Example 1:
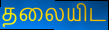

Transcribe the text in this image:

தலையிட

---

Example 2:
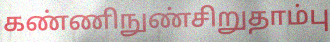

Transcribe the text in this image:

கண்ணிநுண்சிறுதாம்பு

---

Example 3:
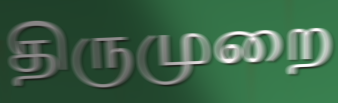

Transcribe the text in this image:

திருமுறை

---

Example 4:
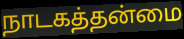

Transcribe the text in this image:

நாடகத்தன்மை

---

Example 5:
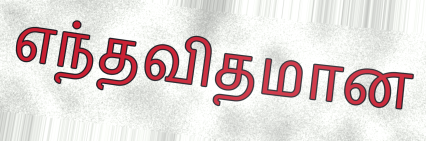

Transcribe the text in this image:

எந்தவிதமான